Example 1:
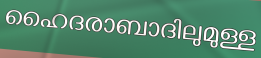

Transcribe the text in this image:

ഹൈദരാബാദിലുമുള്ള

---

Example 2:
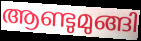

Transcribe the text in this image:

ആണ്ടുമുങ്ങി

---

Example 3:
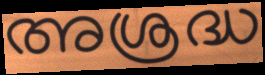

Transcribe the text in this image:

അശ്രദ്ധ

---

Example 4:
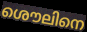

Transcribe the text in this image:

ശൌലിനെ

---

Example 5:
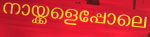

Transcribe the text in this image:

നായ്ക്കളെപ്പോലെ